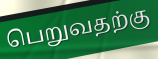
பெறுவதற்கு